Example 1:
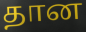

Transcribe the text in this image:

தான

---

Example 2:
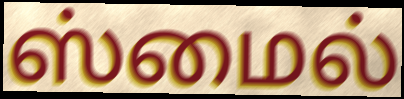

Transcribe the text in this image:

ஸ்மைல்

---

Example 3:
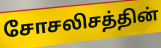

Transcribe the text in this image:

சோசலிசத்தின்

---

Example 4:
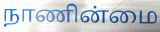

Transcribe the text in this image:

நாணின்மை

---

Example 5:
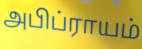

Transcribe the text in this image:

அபிப்ராயம்